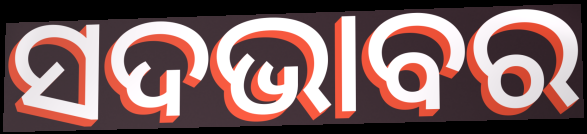
ସଦଭାବର